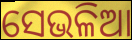
ସେଭଳିଆ